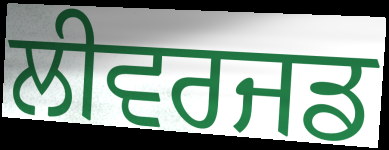
ਲੀਵਰਜਡ